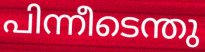
പിന്നീടെന്തു